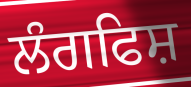
ਲੰਗਫਿਸ਼